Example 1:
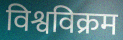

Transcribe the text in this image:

विश्वविक्रम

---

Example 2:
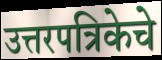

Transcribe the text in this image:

उत्तरपत्रिकेचे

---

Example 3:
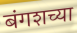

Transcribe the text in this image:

बंगशच्या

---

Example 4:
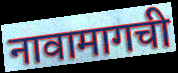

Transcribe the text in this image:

नावामागची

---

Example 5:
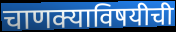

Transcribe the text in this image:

चाणक्याविषयीची